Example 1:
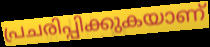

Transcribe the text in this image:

പ്രചരിപ്പിക്കുകയാണ്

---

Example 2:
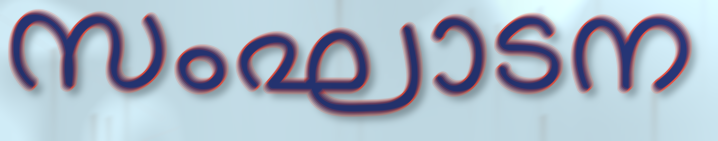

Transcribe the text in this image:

സംഘാടന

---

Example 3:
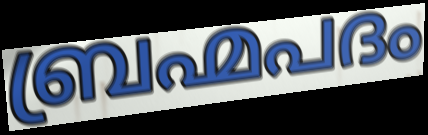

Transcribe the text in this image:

ബ്രഹ്മപദം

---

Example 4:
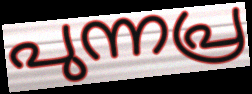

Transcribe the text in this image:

പുന്നപ്ര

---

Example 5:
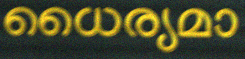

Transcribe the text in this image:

ധൈര്യമാ